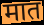
मात